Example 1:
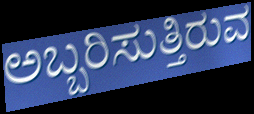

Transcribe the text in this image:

ಅಬ್ಬರಿಸುತ್ತಿರುವ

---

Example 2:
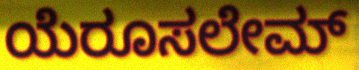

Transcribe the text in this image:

ಯೆರೂಸಲೇಮ್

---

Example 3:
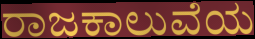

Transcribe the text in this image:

ರಾಜಕಾಲುವೆಯ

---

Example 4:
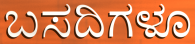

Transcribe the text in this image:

ಬಸದಿಗಳೂ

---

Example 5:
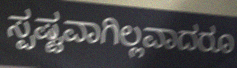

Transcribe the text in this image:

ಸ್ಪಷ್ಟವಾಗಿಲ್ಲವಾದರೂ